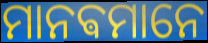
ମାନଵମାନେ